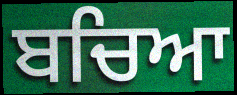
ਬਚਿਆ